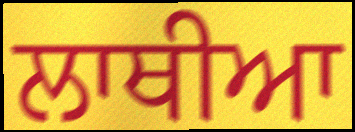
ਲਾਥੀਆ